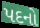
પદનો